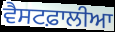
ਵੈਸਟਫ਼ਾਲੀਆ